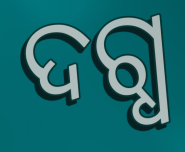
ଦଗ୍ଧ